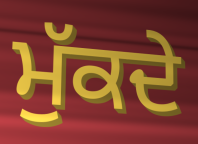
ਮੁੱਕਦੇ